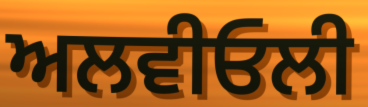
ਅਲਵੀਓਲੀ